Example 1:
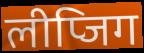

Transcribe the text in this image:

लीप्जिग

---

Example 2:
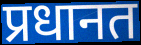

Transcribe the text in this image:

प्रधानत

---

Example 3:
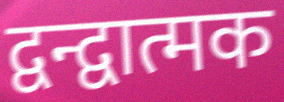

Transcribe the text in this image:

द्वन्द्वात्मक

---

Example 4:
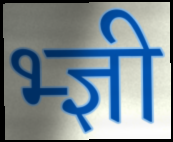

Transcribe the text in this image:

भ्ज्ञी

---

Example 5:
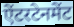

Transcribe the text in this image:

ऐंटरटेनमेंट